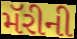
મૅરીની